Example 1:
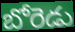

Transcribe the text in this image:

బోరెడు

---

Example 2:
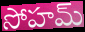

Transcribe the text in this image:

సోహమ్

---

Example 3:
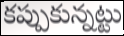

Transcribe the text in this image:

కప్పుకున్నట్టు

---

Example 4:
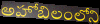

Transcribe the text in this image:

అహోబిలంలోని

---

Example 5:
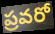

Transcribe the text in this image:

ప్రవరో